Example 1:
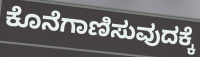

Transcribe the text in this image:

ಕೊನೆಗಾಣಿಸುವುದಕ್ಕೆ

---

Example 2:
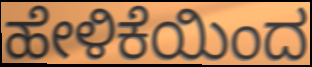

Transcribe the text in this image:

ಹೇಳಿಕೆಯಿಂದ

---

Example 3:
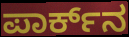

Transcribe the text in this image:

ಪಾರ್ಕ್‌ನ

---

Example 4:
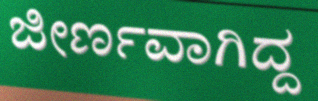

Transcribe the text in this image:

ಜೀರ್ಣವಾಗಿದ್ದ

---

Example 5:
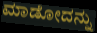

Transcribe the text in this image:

ಮಾಡೋದನ್ನು